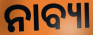
ନାବ୍ୟା